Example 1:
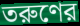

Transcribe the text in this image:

তরুণের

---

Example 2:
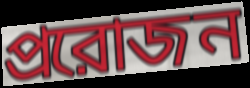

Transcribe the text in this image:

প্ররোজন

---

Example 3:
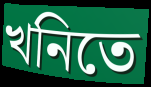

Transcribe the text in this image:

খনিতে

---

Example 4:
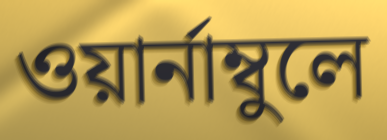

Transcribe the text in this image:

ওয়ার্নাম্বুলে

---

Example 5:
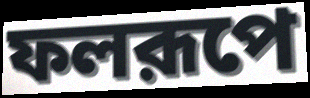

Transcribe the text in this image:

ফলরূপে